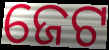
ଜେଟ